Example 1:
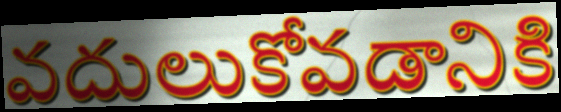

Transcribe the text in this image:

వదులుకోవడానికి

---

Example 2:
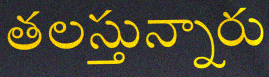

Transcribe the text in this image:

తలస్తున్నారు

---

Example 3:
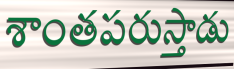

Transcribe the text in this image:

శాంతపరుస్తాడు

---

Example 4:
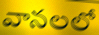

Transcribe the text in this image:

వానలలో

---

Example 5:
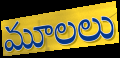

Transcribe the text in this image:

మూలలు